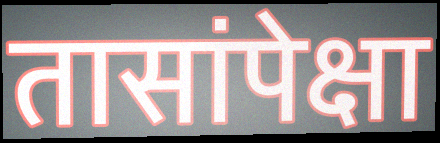
तासांपेक्षा